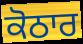
ਕੋਠਾਰ